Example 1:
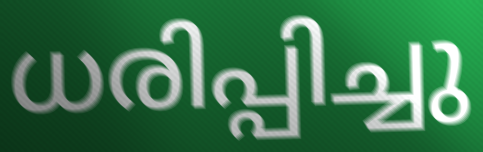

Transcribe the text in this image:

ധരിപ്പിച്ചു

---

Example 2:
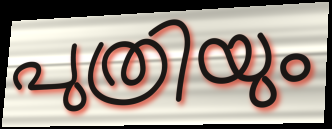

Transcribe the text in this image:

പുത്രിയും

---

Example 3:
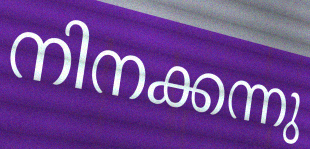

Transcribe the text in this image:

നിനക്കന്നു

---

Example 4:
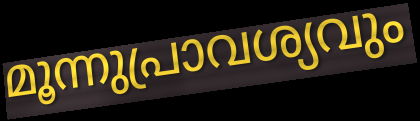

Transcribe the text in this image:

മൂന്നുപ്രാവശ്യവും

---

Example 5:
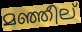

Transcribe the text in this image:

മഞ്ഞീല്